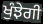
ਖੁੰਝੇਗੀ